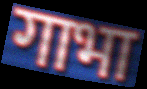
गाभा